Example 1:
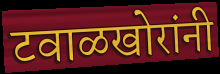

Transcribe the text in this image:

टवाळखोरांनी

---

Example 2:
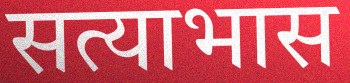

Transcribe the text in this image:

सत्याभास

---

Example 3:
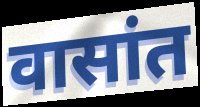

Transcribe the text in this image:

वासांत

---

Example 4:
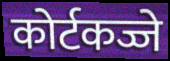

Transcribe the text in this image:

कोर्टकज्जे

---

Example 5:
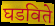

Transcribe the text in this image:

घडविते